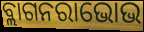
ବ୍ଲାଗନରାଭୋଭ